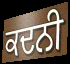
ਕਦਨੀ